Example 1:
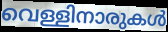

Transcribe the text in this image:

വെള്ളിനാരുകൾ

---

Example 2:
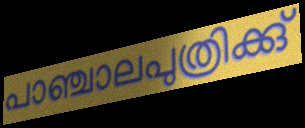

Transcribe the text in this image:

പാഞ്ചാലപുത്രിക്കു്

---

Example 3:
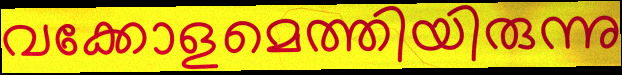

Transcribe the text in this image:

വക്കോളമെത്തിയിരുന്നു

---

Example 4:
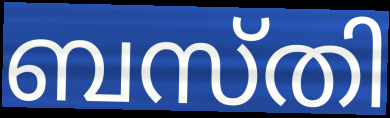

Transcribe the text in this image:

ബസ്തി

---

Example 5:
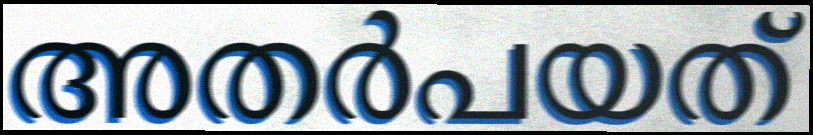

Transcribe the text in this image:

അതർപയത്